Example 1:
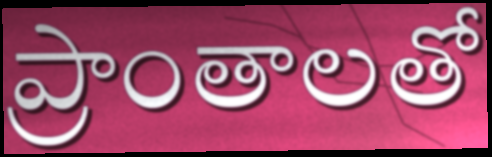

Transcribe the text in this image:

ప్రాంతాలతో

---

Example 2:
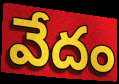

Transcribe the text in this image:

వేదం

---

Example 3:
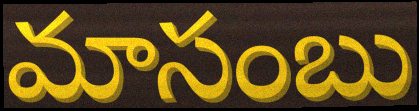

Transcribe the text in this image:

మాసంబు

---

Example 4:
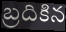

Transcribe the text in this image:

బ్రదికిన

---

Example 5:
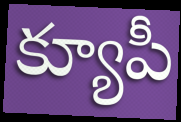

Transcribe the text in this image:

క్యూపీ